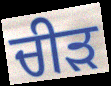
ਚੀੜ